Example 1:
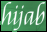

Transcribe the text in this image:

hijab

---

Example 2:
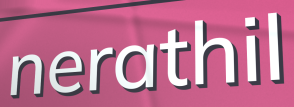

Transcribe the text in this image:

nerathil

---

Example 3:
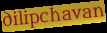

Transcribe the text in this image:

dilipchavan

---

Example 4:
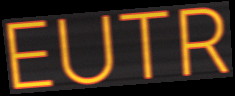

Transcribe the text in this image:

EUTR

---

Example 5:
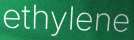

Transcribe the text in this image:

ethylene